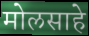
मोलसाहे